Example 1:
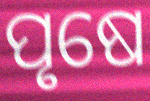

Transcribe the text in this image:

ପୃଷେ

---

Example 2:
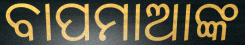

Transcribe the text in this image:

ବାପମାଆଙ୍କ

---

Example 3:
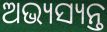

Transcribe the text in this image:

ଅଭ୍ୟସ୍ୟନ୍ତ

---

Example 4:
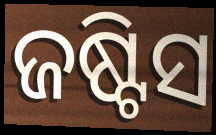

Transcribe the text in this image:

ଜଷ୍ଟିସ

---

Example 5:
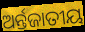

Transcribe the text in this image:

ଅର୍ନ୍ତଜାତୀୟ